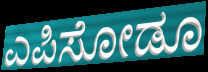
ಎಪಿಸೋಡೂ